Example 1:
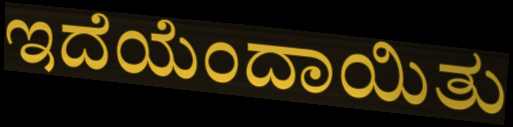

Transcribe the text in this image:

ಇದೆಯೆಂದಾಯಿತು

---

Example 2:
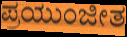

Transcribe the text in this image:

ಪ್ರಯುಂಜೀತ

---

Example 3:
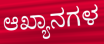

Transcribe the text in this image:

ಆಖ್ಯಾನಗಳ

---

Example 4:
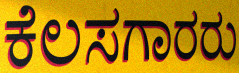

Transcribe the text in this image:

ಕೆಲಸಗಾರರು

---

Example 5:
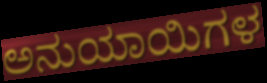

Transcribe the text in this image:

ಅನುಯಾಯಿಗಳ